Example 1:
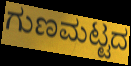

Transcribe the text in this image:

ಗುಣಮಟ್ಟದ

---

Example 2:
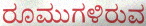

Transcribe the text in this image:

ರೂಮುಗಳಿರುವ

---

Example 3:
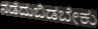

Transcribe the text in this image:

ನಡೆದುಬಿಡಬೇಕು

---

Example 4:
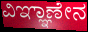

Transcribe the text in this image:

ವಿಞ್ಞಾಣೇನ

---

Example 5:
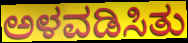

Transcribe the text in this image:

ಅಳವಡಿಸಿತು